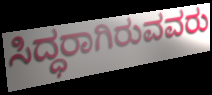
ಸಿದ್ಧರಾಗಿರುವವರು